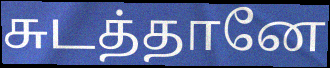
சுடத்தானே